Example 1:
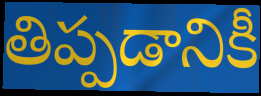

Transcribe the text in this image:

తిప్పడానికీ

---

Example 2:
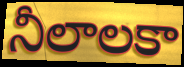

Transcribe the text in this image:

నీలాలకా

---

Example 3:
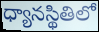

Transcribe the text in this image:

ధ్యానస్థితిలో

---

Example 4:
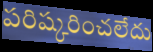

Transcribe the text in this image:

పరిష్కరించలేదు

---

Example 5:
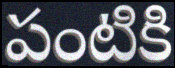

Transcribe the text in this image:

పంటికి